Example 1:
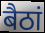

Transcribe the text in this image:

बैठां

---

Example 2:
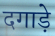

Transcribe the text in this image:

दगाड़े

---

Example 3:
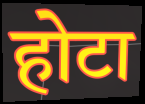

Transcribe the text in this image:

होटा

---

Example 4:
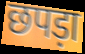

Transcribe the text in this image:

छपड़ा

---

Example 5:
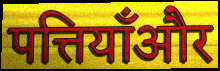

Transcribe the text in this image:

पत्तियाँऔर